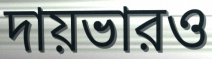
দায়ভারও